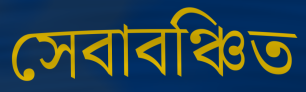
সেবাবঞ্চিত